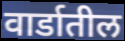
वार्डातील